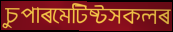
চুপাৰমেটিষ্টসকলৰ